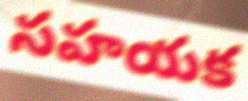
సహయక